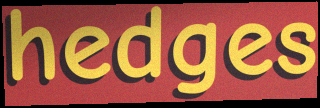
hedges